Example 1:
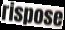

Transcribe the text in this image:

rispose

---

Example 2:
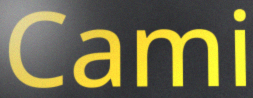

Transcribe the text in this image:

Cami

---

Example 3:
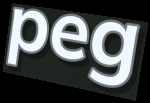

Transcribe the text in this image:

peg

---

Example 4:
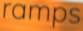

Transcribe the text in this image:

ramps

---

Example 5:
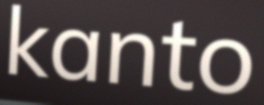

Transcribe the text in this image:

kanto